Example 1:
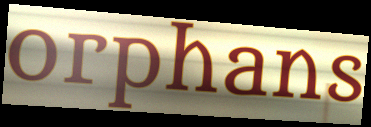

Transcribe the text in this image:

orphans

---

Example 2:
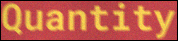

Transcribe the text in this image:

Quantity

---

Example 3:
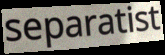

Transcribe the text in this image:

separatist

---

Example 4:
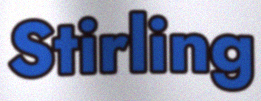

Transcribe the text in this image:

Stirling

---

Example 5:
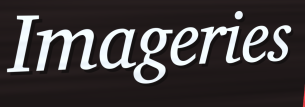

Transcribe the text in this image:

Imageries